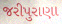
જરીપુરાણા